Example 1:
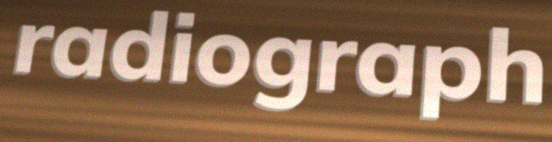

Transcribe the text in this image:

radiograph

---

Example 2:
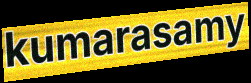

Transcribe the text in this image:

kumarasamy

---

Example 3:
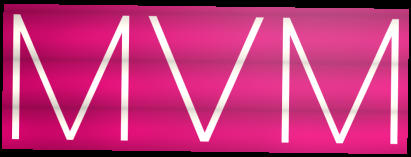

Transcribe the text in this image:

MVM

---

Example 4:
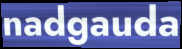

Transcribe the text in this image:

nadgauda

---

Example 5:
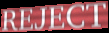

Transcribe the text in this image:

REJECT